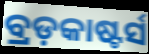
ବ୍ରଡ଼କାଷ୍ଟର୍ସ